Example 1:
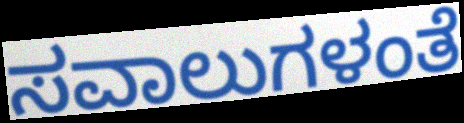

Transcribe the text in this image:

ಸವಾಲುಗಳಂತೆ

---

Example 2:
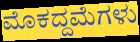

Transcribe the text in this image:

ಮೊಕದ್ದಮೆಗಳು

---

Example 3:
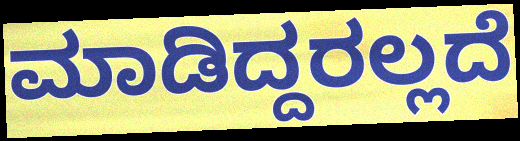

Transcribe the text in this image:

ಮಾಡಿದ್ದರಲ್ಲದೆ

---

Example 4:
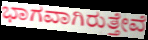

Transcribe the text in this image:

ಭಾಗವಾಗಿರುತ್ತೇವೆ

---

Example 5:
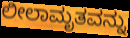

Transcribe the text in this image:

ಲೀಲಾಮೃತವನ್ನು